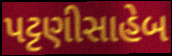
પટ્ટણીસાહેબ